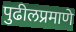
पुढीलप्रमाणे